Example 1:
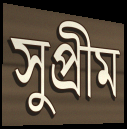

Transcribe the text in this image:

সুপ্ৰীম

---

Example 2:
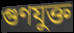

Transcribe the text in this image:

গুণযুক্ত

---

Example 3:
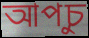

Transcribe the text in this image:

আপচু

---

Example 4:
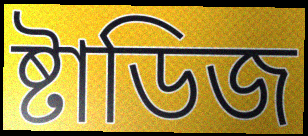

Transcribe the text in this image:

ষ্টাডিজ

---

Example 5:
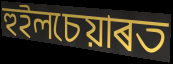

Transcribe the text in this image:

হুইলচেয়াৰত